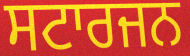
ਸਟਾਰਜਨ